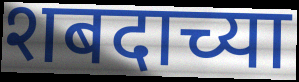
शबदाच्या